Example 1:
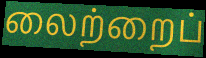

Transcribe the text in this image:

லைற்றைப்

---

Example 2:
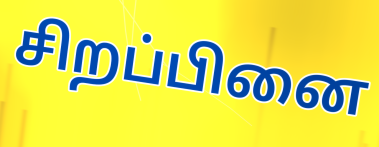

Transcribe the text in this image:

சிறப்பினை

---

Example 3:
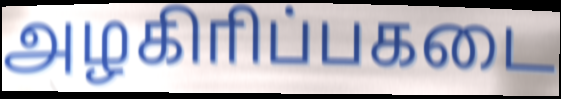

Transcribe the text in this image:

அழகிரிப்பகடை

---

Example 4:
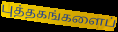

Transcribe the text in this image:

புத்தகங்களைப்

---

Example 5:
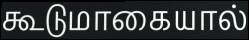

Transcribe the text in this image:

கூடுமாகையால்